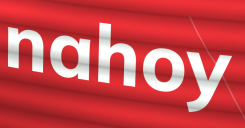
nahoy